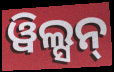
ୱିଲ୍ସନ୍